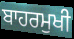
ਬਾਹਰਮੁਖੀ